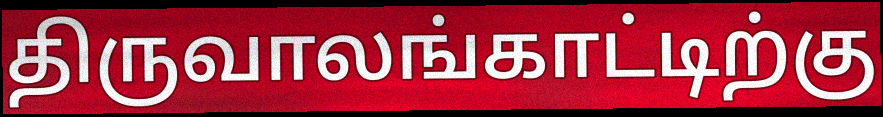
திருவாலங்காட்டிற்கு